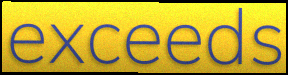
exceeds